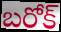
బరోక్